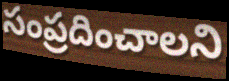
సంప్రదించాలని